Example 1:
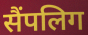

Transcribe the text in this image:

सैंपलिग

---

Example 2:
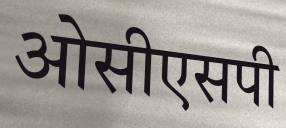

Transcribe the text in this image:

ओसीएसपी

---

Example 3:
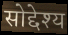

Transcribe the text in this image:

सोद्देश्य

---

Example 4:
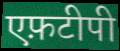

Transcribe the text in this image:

एफ़टीपी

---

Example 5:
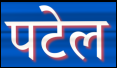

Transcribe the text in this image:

पटेल